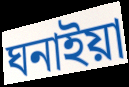
ঘনাইয়া